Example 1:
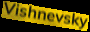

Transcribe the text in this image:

Vishnevsky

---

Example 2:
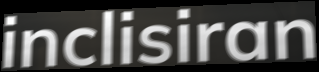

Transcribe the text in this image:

inclisiran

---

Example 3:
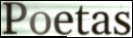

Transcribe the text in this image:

Poetas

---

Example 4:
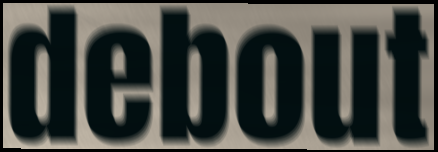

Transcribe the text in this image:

debout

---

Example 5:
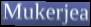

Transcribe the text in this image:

Mukerjea